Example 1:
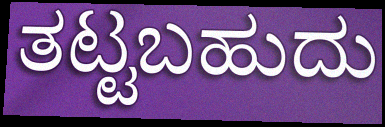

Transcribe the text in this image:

ತಟ್ಟಬಹುದು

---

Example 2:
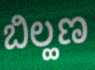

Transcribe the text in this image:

ಬಿಲ್ಹಣ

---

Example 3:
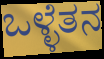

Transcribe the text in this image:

ಒಳ್ಳೆತನ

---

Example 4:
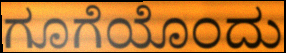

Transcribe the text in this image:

ಗೂಗೆಯೊಂದು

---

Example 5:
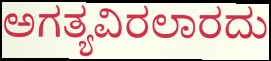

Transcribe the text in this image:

ಅಗತ್ಯವಿರಲಾರದು